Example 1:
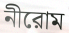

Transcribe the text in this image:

নীরোম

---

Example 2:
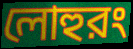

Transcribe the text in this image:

লোহুরং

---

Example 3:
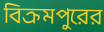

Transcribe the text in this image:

বিক্রমপুরের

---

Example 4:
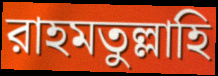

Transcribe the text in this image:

রাহমতুল্লাহি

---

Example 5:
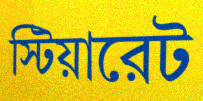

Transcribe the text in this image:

স্টিয়ারেট